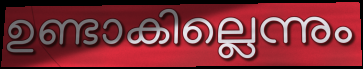
ഉണ്ടാകില്ലെന്നും